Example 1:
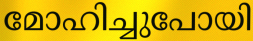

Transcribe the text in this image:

മോഹിച്ചുപോയി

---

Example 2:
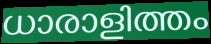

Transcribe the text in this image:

ധാരാളിത്തം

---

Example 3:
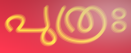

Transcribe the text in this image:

പുത്രഃ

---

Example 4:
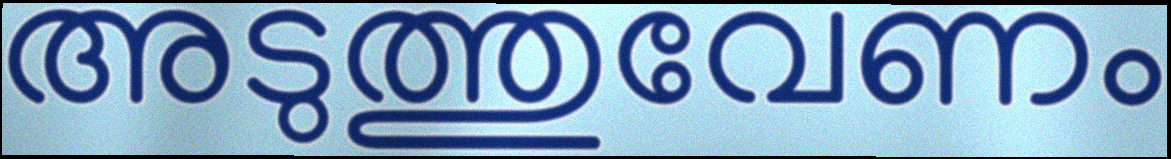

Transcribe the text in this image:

അടുത്തുവേണം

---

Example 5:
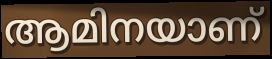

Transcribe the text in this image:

ആമിനയാണ്